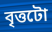
বৃত্তটো